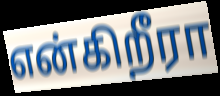
என்கிறீரா